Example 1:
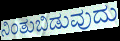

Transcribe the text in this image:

ನಿಂತುಬಿಡುವುದು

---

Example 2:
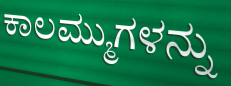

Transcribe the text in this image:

ಕಾಲಮ್ಮುಗಳನ್ನು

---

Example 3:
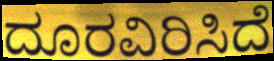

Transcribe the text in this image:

ದೂರವಿರಿಸಿದೆ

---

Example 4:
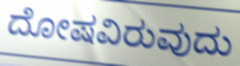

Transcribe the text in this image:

ದೋಷವಿರುವುದು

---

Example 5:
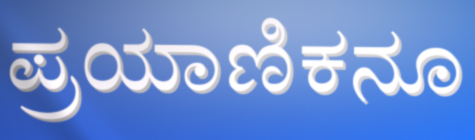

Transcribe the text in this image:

ಪ್ರಯಾಣಿಕನೂ